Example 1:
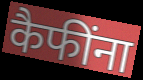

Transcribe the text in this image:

कैफींना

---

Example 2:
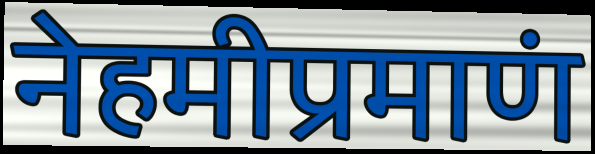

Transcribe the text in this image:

नेहमीप्रमाणं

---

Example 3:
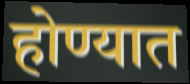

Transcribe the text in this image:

होण्यात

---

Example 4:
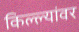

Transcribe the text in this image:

किल्ल्यांवर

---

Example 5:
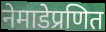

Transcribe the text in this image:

नेमाडेप्रणित